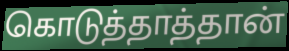
கொடுத்தாத்தான்